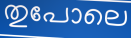
തുപോലെ